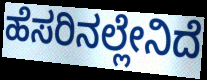
ಹೆಸರಿನಲ್ಲೇನಿದೆ